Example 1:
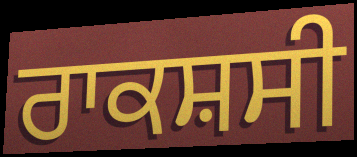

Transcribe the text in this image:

ਰਾਕਸ਼ਸੀ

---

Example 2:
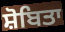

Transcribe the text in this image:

ਸ਼ੋਬਿਤਾ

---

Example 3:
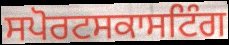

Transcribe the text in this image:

ਸਪੋਰਟਸਕਾਸਟਿੰਗ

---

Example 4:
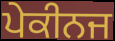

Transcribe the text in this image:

ਪੇਕੀਨਜ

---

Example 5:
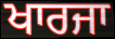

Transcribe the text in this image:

ਖਾਰਜਾ